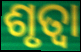
ଶୃତ୍ୱା